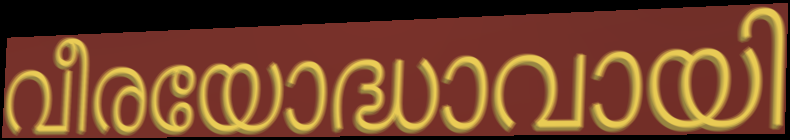
വീരയോദ്ധാവായി